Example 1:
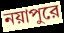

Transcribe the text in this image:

নয়াপুরে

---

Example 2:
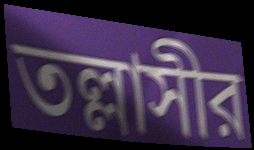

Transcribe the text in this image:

তল্লাসীর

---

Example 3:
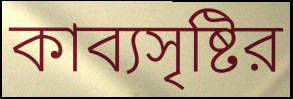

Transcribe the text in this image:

কাব্যসৃষ্টির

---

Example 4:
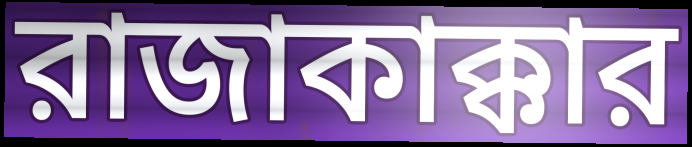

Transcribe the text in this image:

রাজাকাক্কার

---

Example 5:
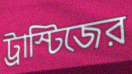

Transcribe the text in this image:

ট্রাস্টিজের